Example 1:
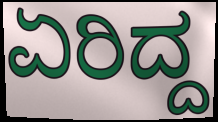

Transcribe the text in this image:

ಏರಿದ್ದ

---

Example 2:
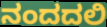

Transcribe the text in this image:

ನಂದದಲಿ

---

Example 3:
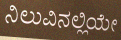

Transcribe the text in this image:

ನಿಲುವಿನಲ್ಲಿಯೇ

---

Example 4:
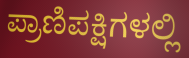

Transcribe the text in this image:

ಪ್ರಾಣಿಪಕ್ಷಿಗಳಲ್ಲಿ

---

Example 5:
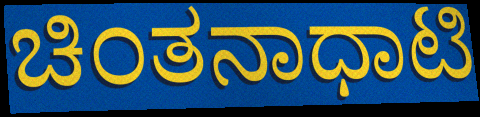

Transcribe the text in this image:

ಚಿಂತನಾಧಾಟಿ